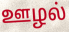
ஊழல்